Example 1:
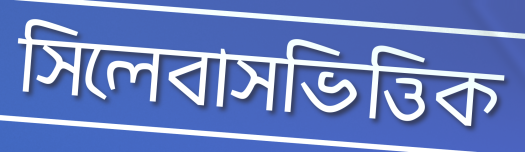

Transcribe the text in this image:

সিলেবাসভিত্তিক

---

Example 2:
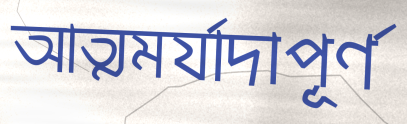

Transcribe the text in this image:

আত্মমর্যাদাপূর্ণ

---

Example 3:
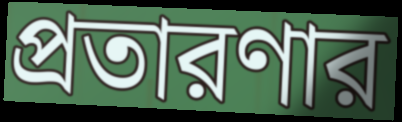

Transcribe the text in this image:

প্রতারণার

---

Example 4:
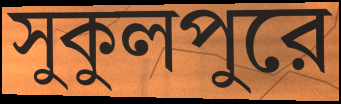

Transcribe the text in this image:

সুকুলপুরে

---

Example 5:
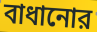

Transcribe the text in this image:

বাধানোর